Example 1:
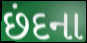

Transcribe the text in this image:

છંદના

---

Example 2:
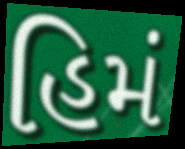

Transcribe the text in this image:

હિમં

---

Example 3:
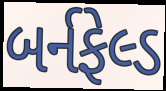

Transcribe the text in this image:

બર્નફેલ્ડ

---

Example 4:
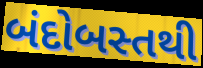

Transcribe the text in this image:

બંદોબસ્તથી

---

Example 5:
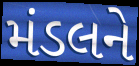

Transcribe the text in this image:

મંડલને